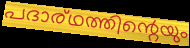
പദാര്ഥത്തിന്റെയും